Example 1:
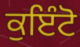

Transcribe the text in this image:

ਕੁਇੰਟੋ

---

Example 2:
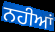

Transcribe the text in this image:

ਨਹੀਆਂ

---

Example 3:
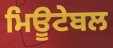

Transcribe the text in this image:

ਮਿਊਟੇਬਲ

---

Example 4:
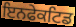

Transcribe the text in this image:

ਇਨਫੇਕਟਿਡ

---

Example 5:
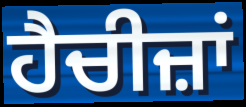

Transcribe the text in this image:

ਹੈਚੀਜ਼ਾਂ